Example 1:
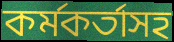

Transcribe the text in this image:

কর্মকর্তাসহ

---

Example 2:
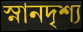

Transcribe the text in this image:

স্নানদৃশ্য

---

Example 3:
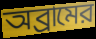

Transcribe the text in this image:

অব্রামের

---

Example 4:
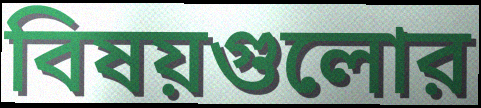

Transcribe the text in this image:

বিষয়গুলোর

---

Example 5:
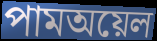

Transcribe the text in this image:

পামঅয়েল